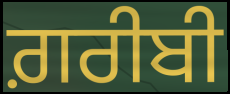
ਗ਼ਰੀਬੀ